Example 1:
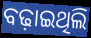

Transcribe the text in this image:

ବଢ଼ାଇଥିଲି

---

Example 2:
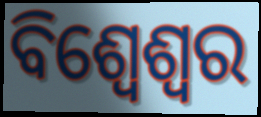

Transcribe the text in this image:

ବିଶ୍ୱେଶ୍ୱର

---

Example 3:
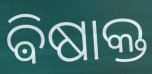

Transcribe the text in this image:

ଵିଷାକ୍ତ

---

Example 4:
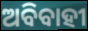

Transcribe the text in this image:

ଅବିବାହୀ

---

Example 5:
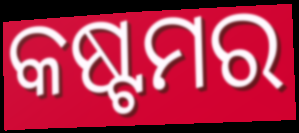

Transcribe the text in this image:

କଷ୍ଟମର